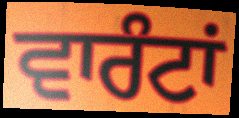
ਵਾਰੰਟਾਂ